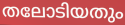
തലോടിയതും